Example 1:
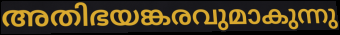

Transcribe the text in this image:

അതിഭയങ്കരവുമാകുന്നു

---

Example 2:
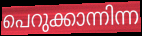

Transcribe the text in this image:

പെറുക്കാന്നിന്ന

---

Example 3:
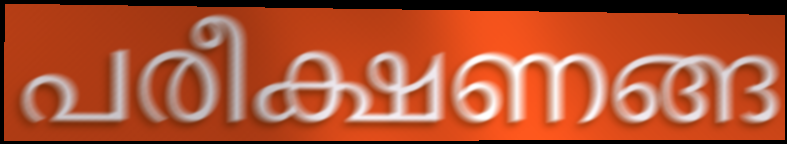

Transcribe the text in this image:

പരീക്ഷണങ്ങ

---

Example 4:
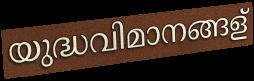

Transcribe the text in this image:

യുദ്ധവിമാനങ്ങള്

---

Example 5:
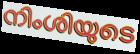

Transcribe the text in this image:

നിംശിയുടെ